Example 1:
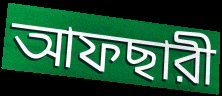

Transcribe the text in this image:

আফছারী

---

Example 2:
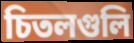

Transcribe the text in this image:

চিতলগুলি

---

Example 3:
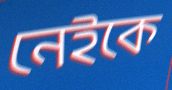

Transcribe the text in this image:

নেইকে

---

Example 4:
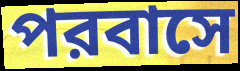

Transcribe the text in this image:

পরবাসে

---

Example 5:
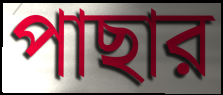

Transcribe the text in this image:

পাছার